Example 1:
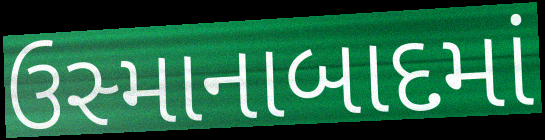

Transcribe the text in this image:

ઉસ્માનાબાદમાં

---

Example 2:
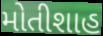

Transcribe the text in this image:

મોતીશાહ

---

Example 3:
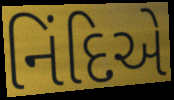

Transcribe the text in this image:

નિંદિએ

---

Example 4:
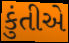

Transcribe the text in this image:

કુંતીએ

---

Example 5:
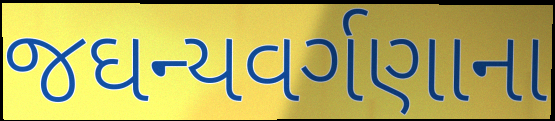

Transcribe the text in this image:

જઘન્યવર્ગણાના